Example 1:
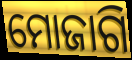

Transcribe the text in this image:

ମୋଜାଗି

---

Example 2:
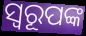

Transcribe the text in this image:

ସ୍ୱରୂପଙ୍କ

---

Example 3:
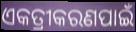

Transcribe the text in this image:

ଏକତ୍ରୀକରଣପାଇଁ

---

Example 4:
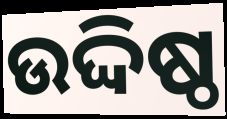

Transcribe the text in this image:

ଉଦ୍ଦିଷ୍ଠ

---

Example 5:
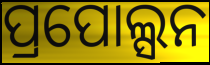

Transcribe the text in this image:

ପ୍ରପୋଲ୍ସନ